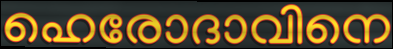
ഹെരോദാവിനെ